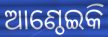
ଆଣ୍ଠେଇକି